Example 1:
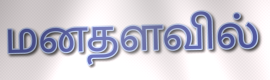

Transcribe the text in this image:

மனதளவில்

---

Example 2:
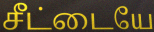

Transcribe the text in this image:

சீட்டையே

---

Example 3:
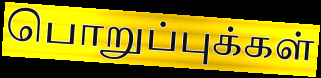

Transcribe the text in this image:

பொறுப்புக்கள்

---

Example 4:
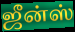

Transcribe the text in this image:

ஜீன்ஸ்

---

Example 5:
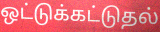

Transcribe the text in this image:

ஒட்டுக்கட்டுதல்